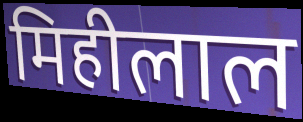
मिहीलाल